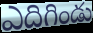
ఎదిగిండు